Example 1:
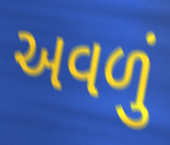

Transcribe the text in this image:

અવળું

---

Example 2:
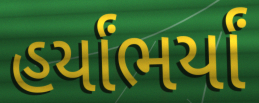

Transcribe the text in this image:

હર્યાંભર્યાં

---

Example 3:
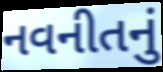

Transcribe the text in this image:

નવનીતનું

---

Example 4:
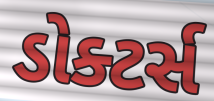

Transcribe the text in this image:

ડોક્ટર્સ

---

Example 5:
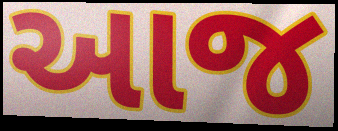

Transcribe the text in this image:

આજ